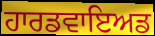
ਹਾਰਡਵਾਇਅਡ